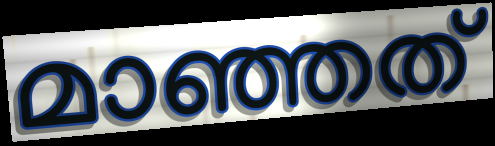
മാഞ്ഞത്